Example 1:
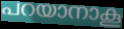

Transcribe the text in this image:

പറയാനാകൂ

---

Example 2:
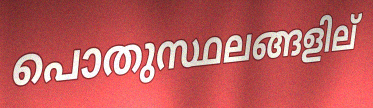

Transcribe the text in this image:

പൊതുസ്ഥലങ്ങളില്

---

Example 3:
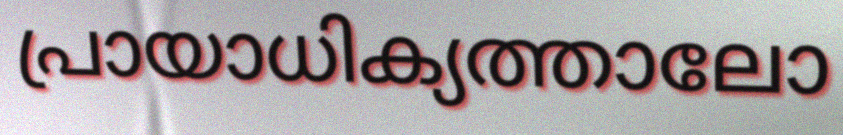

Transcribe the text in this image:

പ്രായാധിക്യത്താലോ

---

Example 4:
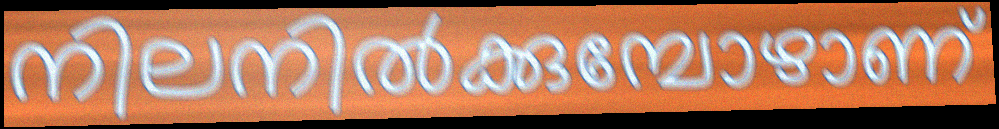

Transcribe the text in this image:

നിലനിൽക്കുമ്പോഴാണ്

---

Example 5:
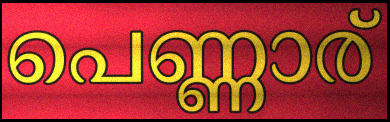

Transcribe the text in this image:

പെണ്ണാര്